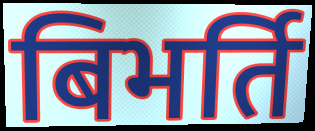
बिभर्ति